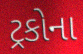
ટ્રકોના